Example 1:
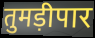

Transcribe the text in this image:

तुमड़ीपार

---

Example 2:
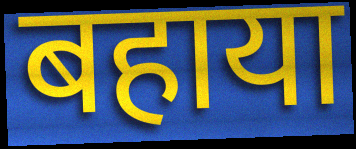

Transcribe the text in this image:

बहाया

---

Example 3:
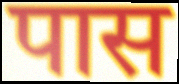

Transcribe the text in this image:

पास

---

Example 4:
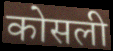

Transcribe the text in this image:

कोसली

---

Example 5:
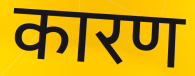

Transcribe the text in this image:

कारण